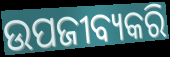
ଉପଜୀବ୍ୟକରି